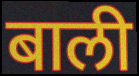
बाली